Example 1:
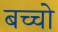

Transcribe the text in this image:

बच्चो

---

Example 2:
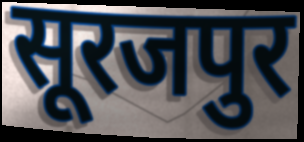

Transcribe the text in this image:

सूरजपुर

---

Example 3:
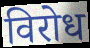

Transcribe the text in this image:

विरोध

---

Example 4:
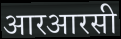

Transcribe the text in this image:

आरआरसी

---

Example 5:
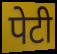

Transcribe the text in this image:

पेटी